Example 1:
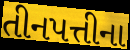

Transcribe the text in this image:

તીનપત્તીના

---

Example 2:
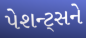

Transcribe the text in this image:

પેશન્ટ્સને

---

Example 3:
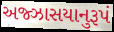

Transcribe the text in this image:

અજ્ઝાસયાનુરૂપં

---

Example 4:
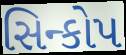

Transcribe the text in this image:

સિન્કોપ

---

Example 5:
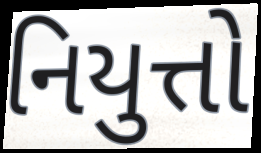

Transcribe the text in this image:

નિયુત્તો